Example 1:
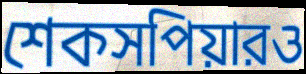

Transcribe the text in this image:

শেকসপিয়ারও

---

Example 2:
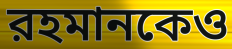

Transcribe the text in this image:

রহমানকেও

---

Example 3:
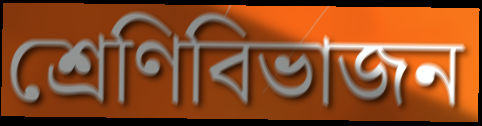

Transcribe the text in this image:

শ্রেণিবিভাজন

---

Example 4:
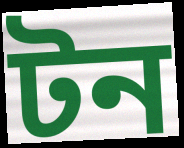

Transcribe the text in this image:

টন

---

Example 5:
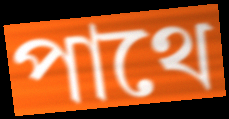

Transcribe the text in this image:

পাথে